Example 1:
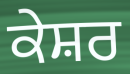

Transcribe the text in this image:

ਕੇਸ਼ਰ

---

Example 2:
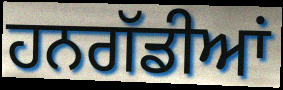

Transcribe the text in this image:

ਹਨਗੱਡੀਆਂ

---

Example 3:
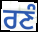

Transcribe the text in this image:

ਰਣੰ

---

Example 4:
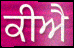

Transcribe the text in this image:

ਕੀਐ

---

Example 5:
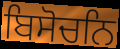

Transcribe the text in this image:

ਬਿਸੋਚਨਿ